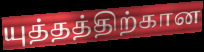
யுத்தத்திற்கான